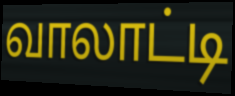
வாலாட்டி